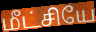
மீட்சியே